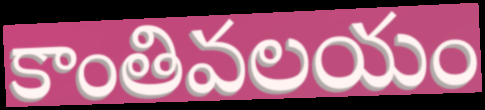
కాంతివలయం